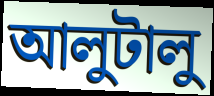
আলুটালু